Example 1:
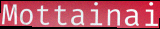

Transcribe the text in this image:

Mottainai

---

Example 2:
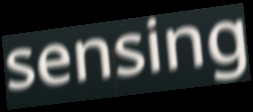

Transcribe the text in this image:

sensing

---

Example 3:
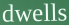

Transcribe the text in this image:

dwells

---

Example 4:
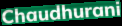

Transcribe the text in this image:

Chaudhurani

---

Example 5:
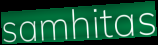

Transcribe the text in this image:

samhitas